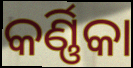
କର୍ଣ୍ଣିକା